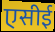
एसीई